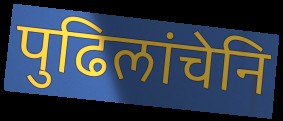
पुढिलांचेनि